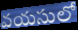
వయసులో